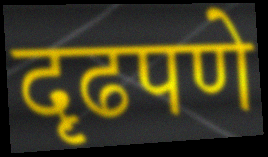
दृढपणे